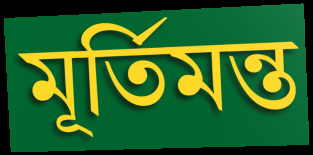
মূর্তিমন্ত